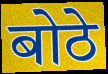
बोठे